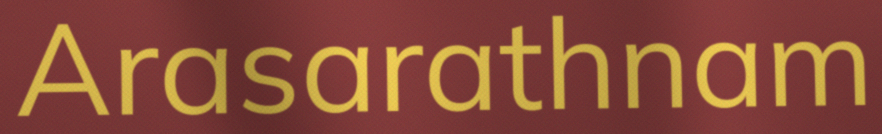
Arasarathnam